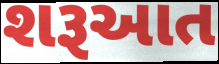
શરૂઆત